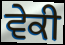
ਵੇਕੀ